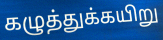
கழுத்துக்கயிறு